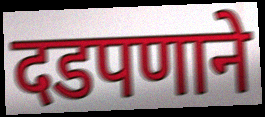
दडपणाने